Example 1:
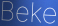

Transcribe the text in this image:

Beke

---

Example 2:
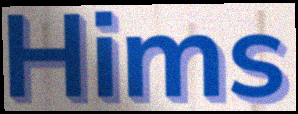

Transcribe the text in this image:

Hims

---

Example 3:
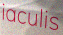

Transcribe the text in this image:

iaculis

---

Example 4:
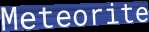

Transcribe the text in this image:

Meteorite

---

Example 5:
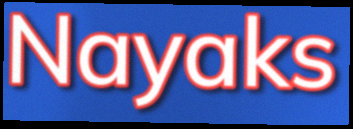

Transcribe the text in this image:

Nayaks